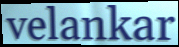
velankar